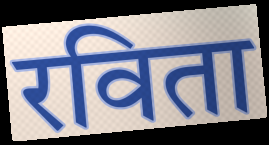
रविता